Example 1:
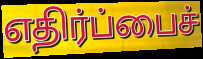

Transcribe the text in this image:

எதிர்ப்பைச்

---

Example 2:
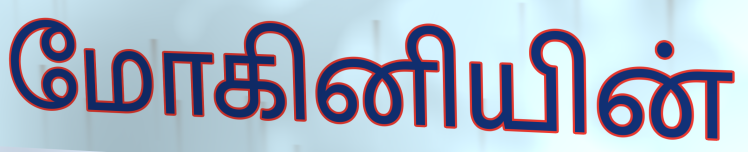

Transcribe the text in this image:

மோகினியின்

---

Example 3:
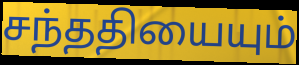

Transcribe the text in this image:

சந்ததியையும்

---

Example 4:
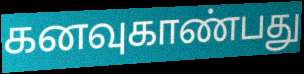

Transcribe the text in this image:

கனவுகாண்பது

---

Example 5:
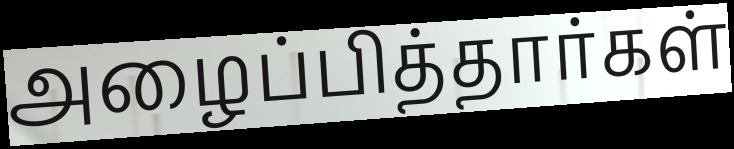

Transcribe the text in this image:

அழைப்பித்தார்கள்